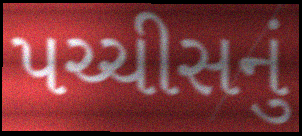
પચ્ચીસનું